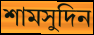
শামসুদিন